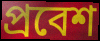
প্রবেশ